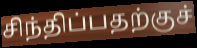
சிந்திப்பதற்குச்